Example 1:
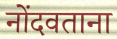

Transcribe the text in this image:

नोंदवताना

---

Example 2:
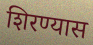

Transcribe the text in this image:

शिरण्यास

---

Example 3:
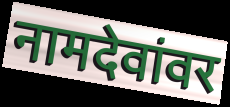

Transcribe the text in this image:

नामदेवांवर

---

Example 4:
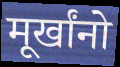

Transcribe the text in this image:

मूर्खांनो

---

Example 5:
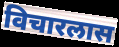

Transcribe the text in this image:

विचारलास